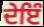
ਦੇਇੰ